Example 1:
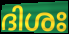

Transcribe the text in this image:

ദിശഃ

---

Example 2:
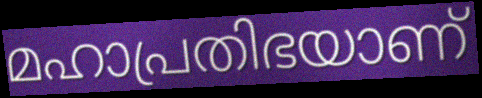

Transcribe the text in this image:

മഹാപ്രതിഭയാണ്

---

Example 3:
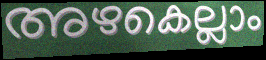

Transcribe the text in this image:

അഴകെല്ലാം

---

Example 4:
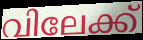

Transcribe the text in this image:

വിലേക്ക്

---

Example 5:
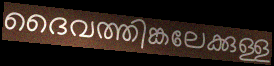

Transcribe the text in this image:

ദൈവത്തിങ്കലേക്കുള്ള